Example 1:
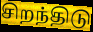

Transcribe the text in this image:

சிறந்திடு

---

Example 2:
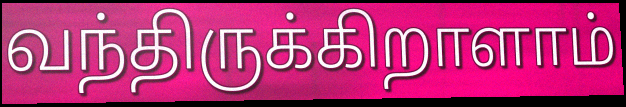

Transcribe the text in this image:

வந்திருக்கிறாளாம்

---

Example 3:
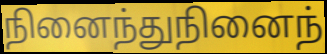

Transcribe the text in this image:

நினைந்துநினைந்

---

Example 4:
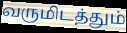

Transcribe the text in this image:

வருமிடத்தும்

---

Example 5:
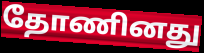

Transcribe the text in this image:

தோணினது